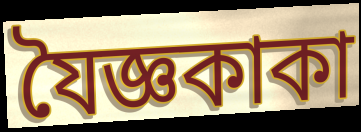
যৈজ্ঞকাকা